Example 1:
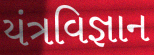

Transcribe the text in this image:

યંત્રવિજ્ઞાન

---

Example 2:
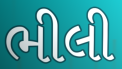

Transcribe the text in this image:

ભીલી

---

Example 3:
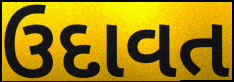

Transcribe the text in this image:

ઉદાવત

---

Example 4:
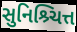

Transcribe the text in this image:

સુનિશ્ર્ચિત્ત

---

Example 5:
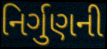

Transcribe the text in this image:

નિર્ગુણની